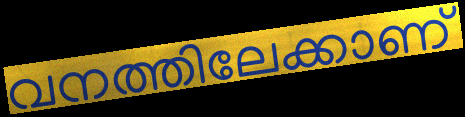
വനത്തിലേക്കാണ്